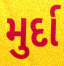
મુર્દા